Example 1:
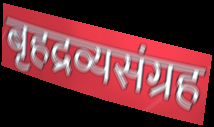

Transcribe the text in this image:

बृहद्रव्यसंग्रह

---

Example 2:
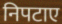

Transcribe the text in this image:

निपटाए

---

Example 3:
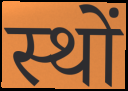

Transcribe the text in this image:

स्थों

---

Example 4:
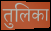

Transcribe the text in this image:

तुलिका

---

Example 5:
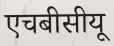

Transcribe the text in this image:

एचबीसीयू